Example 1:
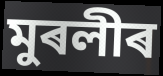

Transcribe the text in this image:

মুৰলীৰ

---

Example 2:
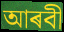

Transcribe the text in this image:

আৰবী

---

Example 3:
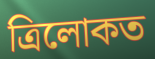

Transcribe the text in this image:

ত্ৰিলোকত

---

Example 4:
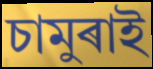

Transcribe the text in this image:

চামুৰাই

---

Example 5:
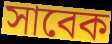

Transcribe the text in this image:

সাবেক